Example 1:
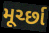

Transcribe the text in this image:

મૂર્ચ્છા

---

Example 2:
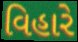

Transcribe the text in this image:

વિહારે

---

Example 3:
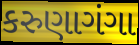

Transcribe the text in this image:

કરુણાગંગા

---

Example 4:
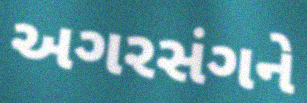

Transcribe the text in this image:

અગરસંગને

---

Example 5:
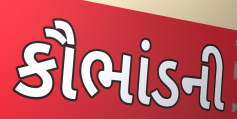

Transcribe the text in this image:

કૌભાંડની